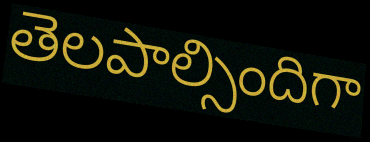
తెలపాల్సిందిగా